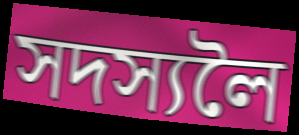
সদস্যলৈ